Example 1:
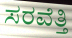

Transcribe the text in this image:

ಸರವೆತ್ತಿ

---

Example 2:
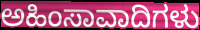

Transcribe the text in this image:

ಅಹಿಂಸಾವಾದಿಗಳು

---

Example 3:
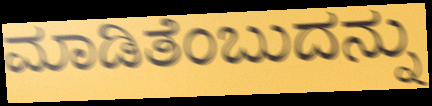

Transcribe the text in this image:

ಮಾಡಿತೆಂಬುದನ್ನು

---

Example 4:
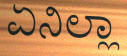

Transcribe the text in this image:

ಏನಿಲ್ಲಾ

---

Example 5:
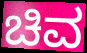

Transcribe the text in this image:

ಚಿವ